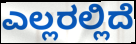
ಎಲ್ಲರಲ್ಲಿದೆ